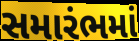
સમારંભમાં